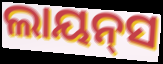
ଲାୟନ୍‌ସ